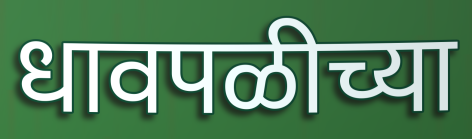
धावपळीच्या